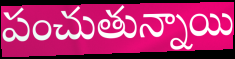
పంచుతున్నాయి